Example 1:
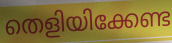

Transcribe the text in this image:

തെളിയിക്കേണ്ട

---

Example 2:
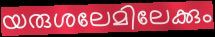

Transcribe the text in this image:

യരുശലേമിലേക്കും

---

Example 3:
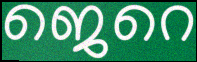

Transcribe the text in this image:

ജെറെ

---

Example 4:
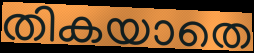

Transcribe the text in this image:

തികയാതെ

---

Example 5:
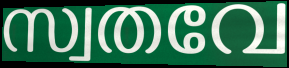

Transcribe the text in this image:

സ്വതവേ